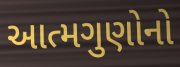
આત્મગુણોનો